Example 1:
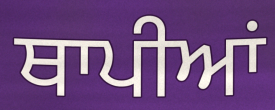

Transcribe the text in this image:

ਥਾਪੀਆਂ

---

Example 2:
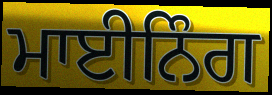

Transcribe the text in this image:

ਮਾਈਨਿੰਗ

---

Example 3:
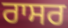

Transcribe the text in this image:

ਰਾਸਰ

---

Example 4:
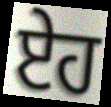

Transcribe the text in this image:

ਏਹ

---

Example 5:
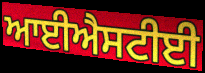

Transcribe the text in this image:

ਆਈਐਸਟੀਈ